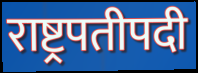
राष्ट्रपतीपदी